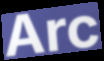
Arc